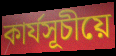
কাৰ্যসূচীয়ে